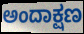
ಅಂದಾಕ್ಷಣ